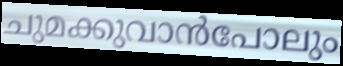
ചുമക്കുവാൻപോലും